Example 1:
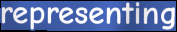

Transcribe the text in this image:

representing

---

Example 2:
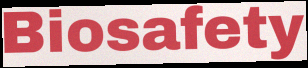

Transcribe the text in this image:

Biosafety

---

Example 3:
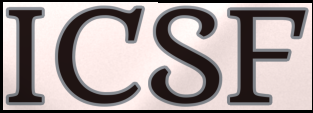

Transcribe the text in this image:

ICSF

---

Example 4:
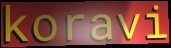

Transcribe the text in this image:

koravi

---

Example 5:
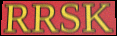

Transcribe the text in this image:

RRSK